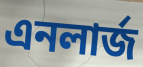
এনলার্জ